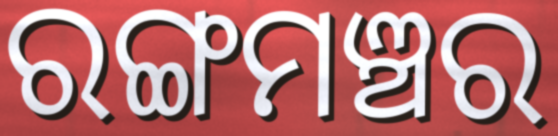
ରଙ୍ଗମଞ୍ଚର